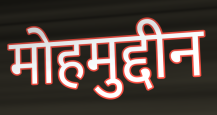
मोहमुद्दीन